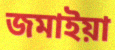
জমাইয়া